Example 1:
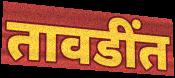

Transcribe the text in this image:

तावडींत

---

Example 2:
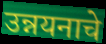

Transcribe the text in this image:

उन्नयनाचे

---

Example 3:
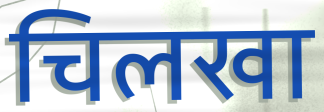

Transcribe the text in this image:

चिलखा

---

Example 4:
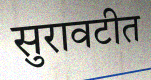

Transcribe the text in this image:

सुरावटीत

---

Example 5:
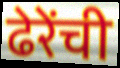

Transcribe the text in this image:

ढेरेंची